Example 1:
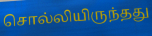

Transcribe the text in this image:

சொல்லியிருந்தது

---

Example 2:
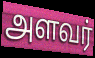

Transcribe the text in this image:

அளவர்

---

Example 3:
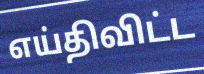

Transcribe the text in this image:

எய்திவிட்ட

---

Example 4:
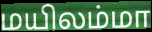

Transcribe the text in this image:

மயிலம்மா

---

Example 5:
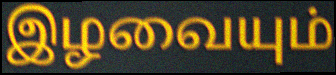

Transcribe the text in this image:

இழவையும்